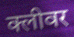
क्लीवर